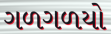
ગળગળયો